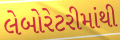
લેબોરેટરીમાંથી